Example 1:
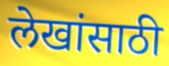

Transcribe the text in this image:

लेखांसाठी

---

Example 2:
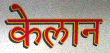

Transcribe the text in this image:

केलान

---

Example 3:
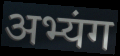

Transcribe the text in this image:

अभ्यंग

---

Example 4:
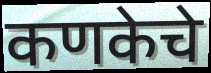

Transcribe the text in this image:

कणकेचे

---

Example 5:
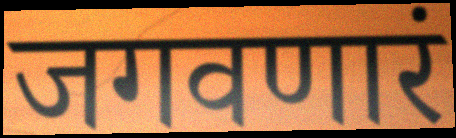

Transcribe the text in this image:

जगवणारं